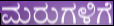
ಮರುಗಳಿಗೆ